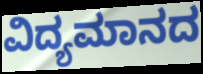
ವಿದ್ಯಮಾನದ